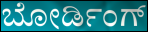
ಬೋರ್ಡಿಂಗ್